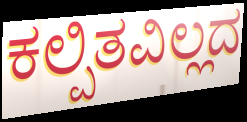
ಕಲ್ಪಿತವಿಲ್ಲದ